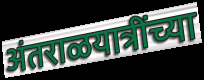
अंतराळयात्रींच्या